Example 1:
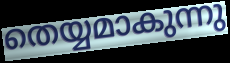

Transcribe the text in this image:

തെയ്യമാകുന്നു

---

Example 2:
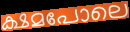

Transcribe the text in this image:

ക്ഷമപോലെ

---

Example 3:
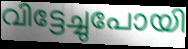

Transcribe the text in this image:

വിട്ടേച്ചുപോയി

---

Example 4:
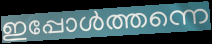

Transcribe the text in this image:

ഇപ്പോൾത്തന്നെ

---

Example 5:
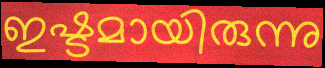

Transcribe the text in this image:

ഇഷ്ടമായിരുന്നു